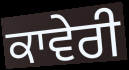
ਕਾਵੇਰੀ